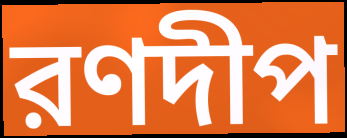
রণদীপ